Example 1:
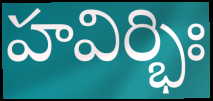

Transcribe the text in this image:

హవిర్భిః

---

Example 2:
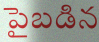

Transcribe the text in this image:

పైబడిన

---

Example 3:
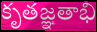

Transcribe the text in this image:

కృతజ్ఞతాభి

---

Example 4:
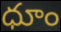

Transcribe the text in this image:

ధూం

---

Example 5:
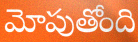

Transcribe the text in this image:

మోపుతోంది